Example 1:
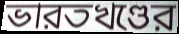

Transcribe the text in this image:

ভারতখণ্ডের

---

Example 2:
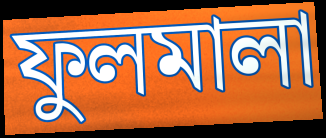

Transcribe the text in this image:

ফুলমালা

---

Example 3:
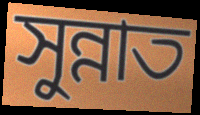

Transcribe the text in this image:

সুন্নাত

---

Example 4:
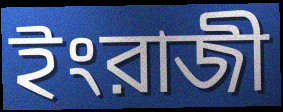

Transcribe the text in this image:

ইংরাজী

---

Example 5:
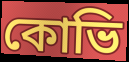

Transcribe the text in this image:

কোভি